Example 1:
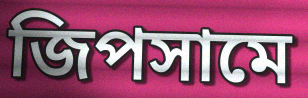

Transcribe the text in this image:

জিপসামে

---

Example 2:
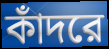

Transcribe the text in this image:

কাঁদরে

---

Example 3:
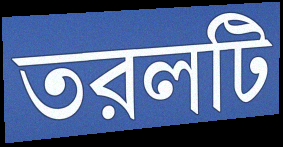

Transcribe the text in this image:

তরলটি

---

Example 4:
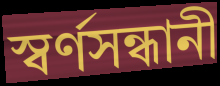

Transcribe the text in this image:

স্বর্ণসন্ধানী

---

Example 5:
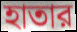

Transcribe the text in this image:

হাতার